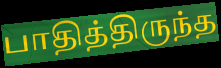
பாதித்திருந்த